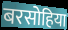
बरसोहिया